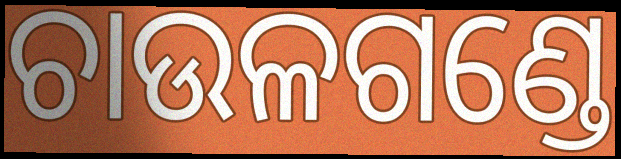
ଚାଉଳଗଣ୍ଡେ